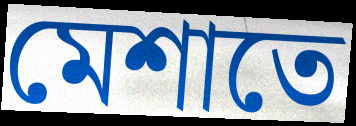
মেশাতে